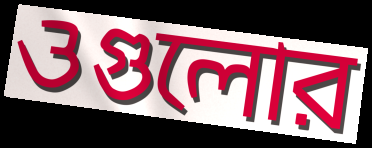
ওগুলোর